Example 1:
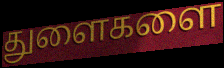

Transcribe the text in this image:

துளைகளை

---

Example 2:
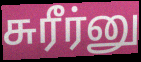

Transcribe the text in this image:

சுரீர்னு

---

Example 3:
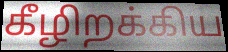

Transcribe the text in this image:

கீழிறக்கிய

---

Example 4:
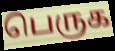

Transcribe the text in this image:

பெருக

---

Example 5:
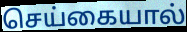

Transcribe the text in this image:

செய்கையால்